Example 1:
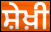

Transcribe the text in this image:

ਸ਼ੇਖ਼ੀ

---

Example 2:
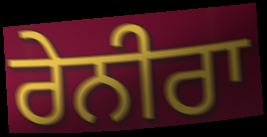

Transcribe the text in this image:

ਰੇਨੀਰਾ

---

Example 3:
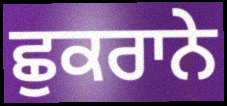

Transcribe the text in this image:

ਛੁਕਰਾਨੇ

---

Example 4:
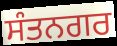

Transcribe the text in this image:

ਸੰਤਨਗਰ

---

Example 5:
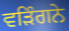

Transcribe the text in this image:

ਵੜਿੰਗਨੇ